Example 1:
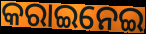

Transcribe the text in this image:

କରାଇନେଇ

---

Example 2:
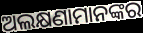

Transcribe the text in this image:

ଅଲକ୍ଷଣାମାନଙ୍କର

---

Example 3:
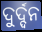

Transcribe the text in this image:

ଦୁର୍ଦ୍ଦନ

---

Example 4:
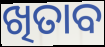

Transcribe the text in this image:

ଖିତାବ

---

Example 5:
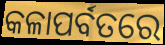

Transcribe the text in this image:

କଳାପର୍ବତରେ